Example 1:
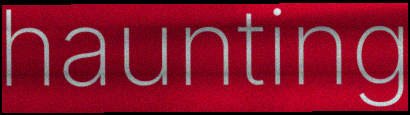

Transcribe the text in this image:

haunting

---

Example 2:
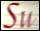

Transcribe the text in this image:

Su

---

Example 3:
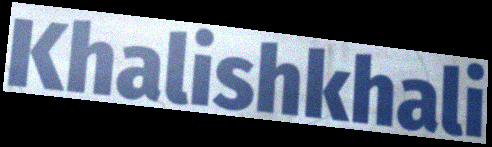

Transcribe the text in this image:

Khalishkhali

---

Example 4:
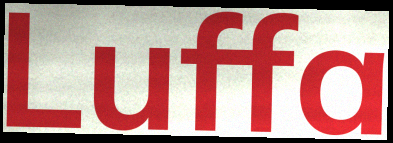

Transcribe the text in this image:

Luffa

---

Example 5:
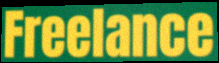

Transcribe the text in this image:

Freelance